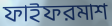
ফাইফরমাশ